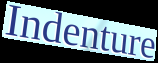
Indenture